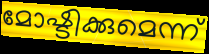
മോഷ്ടിക്കുമെന്ന്